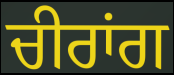
ਚੀਰਾਂਗ